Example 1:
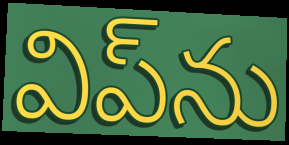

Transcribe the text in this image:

విప్‌ను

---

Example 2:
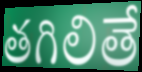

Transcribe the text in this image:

తగిలితే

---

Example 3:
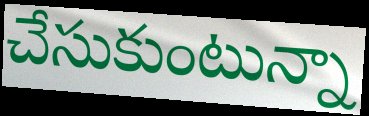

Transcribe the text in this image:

చేసుకుంటున్నా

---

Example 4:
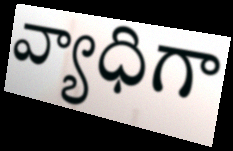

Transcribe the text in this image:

వ్యాధిగా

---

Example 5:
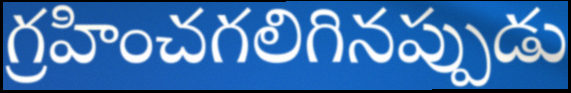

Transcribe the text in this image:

గ్రహించగలిగినప్పుడు